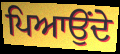
ਪਿਆਉਂਦੇ